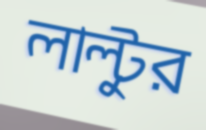
লাল্টুর